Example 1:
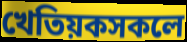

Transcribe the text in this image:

খেতিয়কসকলে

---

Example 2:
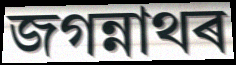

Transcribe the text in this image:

জগন্নাথৰ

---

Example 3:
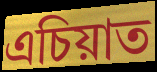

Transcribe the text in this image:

এচিয়াত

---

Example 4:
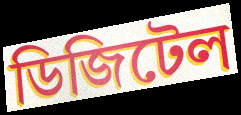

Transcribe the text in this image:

ডিজিটেল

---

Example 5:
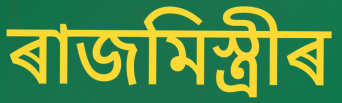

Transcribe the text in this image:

ৰাজমিস্ত্ৰীৰ